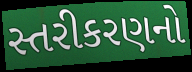
સ્તરીકરણનો